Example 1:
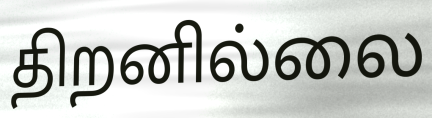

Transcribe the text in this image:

திறனில்லை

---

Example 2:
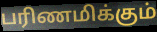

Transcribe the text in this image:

பரிணமிக்கும்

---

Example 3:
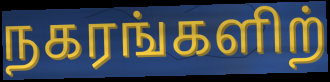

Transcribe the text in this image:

நகரங்களிற்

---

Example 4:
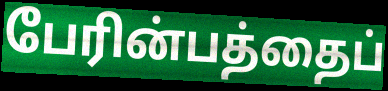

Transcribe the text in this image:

பேரின்பத்தைப்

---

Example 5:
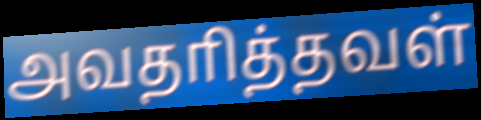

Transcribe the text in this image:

அவதரித்தவள்